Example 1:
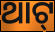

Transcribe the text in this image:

ଥାଟ୍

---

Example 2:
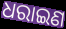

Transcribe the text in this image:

ଧରାଇଣ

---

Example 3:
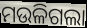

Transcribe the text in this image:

ମଉଳିଗଲା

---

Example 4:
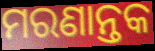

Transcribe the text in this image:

ମରଣାନ୍ତକ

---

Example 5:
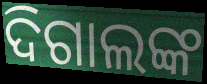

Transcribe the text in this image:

ଦିଗାଲଙ୍କ